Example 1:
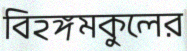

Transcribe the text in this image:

বিহঙ্গমকুলের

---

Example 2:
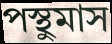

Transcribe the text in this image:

পস্থুমাস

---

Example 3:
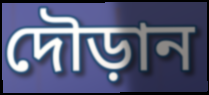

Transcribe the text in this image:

দৌড়ান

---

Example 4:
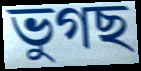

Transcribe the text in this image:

ভুগছ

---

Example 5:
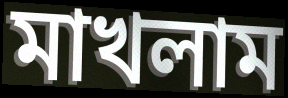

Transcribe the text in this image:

মাখলাম